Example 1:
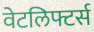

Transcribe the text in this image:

वेटलिफ्टर्स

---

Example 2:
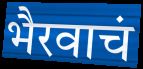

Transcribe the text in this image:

भैरवाचं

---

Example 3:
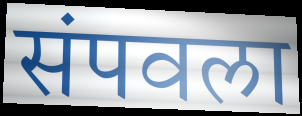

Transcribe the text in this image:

संपवला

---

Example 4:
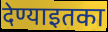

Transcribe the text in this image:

देण्याइतका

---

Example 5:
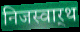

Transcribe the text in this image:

निजस्वार्थ